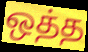
ஒத்த